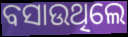
ବସାଉଥିଲେ